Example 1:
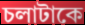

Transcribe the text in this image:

চলাটাকে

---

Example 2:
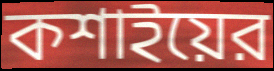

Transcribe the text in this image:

কশাইয়ের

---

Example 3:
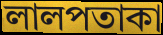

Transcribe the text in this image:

লালপতাকা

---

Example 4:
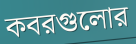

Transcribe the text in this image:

কবরগুলোর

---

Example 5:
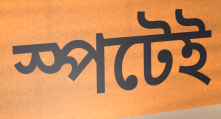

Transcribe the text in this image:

স্পটেই